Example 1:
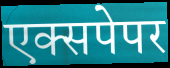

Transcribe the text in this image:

एक्सपेपर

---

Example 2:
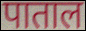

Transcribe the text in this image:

पाताल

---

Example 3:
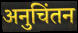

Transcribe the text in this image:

अनुचिंतन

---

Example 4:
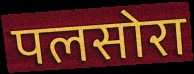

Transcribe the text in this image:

पलसोरा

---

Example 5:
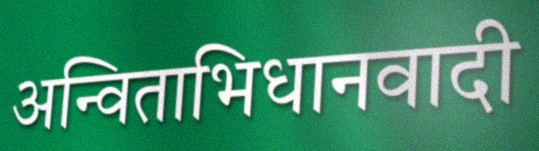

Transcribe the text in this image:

अन्विताभिधानवादी